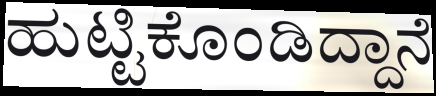
ಹುಟ್ಟಿಕೊಂಡಿದ್ದಾನೆ